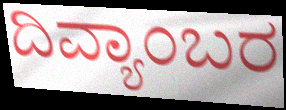
ದಿವ್ಯಾಂಬರ